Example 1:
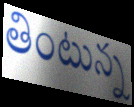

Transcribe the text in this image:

తింటున్న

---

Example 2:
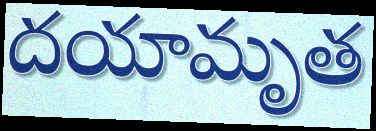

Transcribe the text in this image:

దయామృత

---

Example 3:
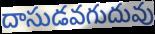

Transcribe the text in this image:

దాసుడవగుదువు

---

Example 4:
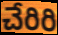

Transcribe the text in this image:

చేరిరి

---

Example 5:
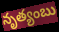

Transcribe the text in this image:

నృత్యంబు